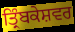
ਤ੍ਰਿੰਬਕੇਸ਼ਵਰ